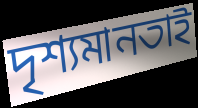
দৃশ্যমানতাই